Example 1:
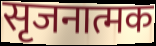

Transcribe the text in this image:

सृजनात्मक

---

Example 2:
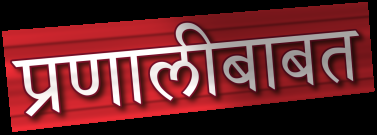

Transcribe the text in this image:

प्रणालीबाबत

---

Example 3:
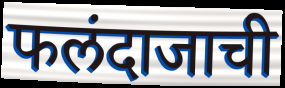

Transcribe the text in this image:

फलंदाजाची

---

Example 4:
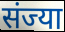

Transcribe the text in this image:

संज्या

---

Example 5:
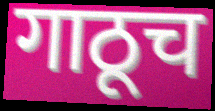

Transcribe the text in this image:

गाठूच